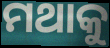
ମଥାକୁ